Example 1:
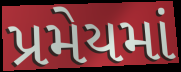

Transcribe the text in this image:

પ્રમેયમાં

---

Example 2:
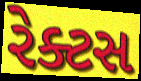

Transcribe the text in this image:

રેક્ટસ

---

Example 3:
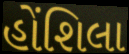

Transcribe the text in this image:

હોંશિલા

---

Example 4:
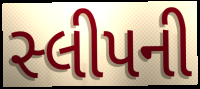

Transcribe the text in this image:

સ્લીપની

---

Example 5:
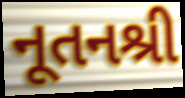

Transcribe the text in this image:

નૂતનશ્રી